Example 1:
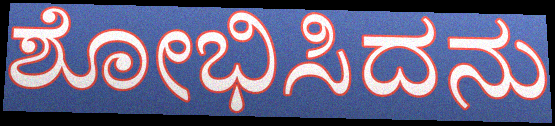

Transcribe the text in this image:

ಶೋಭಿಸಿದನು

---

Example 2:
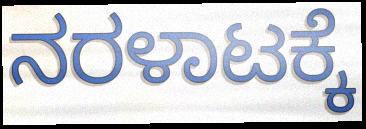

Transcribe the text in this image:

ನರಳಾಟಕ್ಕೆ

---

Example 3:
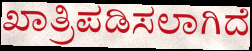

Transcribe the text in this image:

ಖಾತ್ರಿಪಡಿಸಲಾಗಿದೆ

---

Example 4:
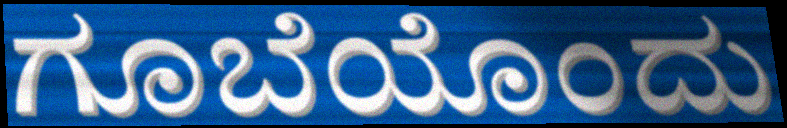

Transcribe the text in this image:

ಗೂಬೆಯೊಂದು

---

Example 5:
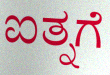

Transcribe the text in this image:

ಐತ್ನಗೆ